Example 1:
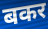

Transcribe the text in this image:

बकर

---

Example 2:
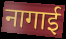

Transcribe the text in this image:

नागाई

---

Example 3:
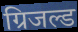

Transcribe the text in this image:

ग्रिजल्ड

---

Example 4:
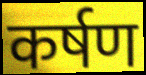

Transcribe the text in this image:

कर्षण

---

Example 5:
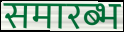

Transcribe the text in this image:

समारब्भ